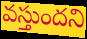
వస్తుందని